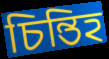
চিন্তিহ